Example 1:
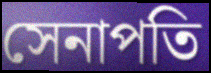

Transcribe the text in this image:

সেনাপতি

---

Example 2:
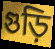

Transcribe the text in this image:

গুড়ি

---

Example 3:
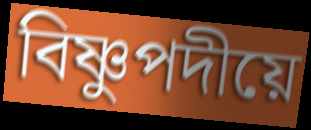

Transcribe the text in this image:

বিষ্ণুপদীয়ে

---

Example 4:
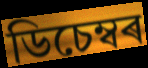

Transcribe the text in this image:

ডিচেম্বৰ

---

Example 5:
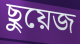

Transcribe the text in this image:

ছুয়েজ